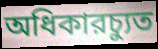
অধিকারচ্যুত